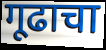
गूढाचा